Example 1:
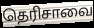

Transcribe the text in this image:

தெரிசாவை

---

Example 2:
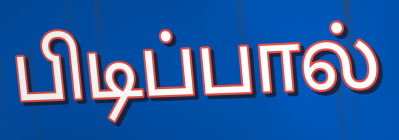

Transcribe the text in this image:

பிடிப்பால்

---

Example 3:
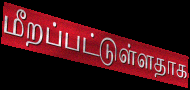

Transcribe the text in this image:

மீறப்பட்டுள்ளதாக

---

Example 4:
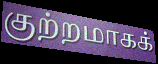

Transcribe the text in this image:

குற்றமாகக்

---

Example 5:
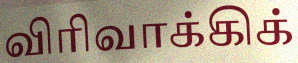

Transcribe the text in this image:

விரிவாக்கிக்